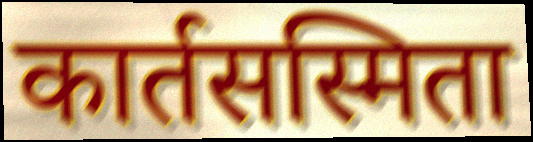
कार्तसस्मिता